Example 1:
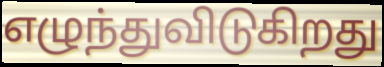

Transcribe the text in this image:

எழுந்துவிடுகிறது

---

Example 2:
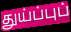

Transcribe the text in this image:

துய்ப்புப்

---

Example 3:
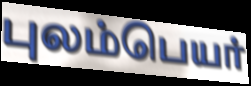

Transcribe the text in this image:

புலம்பெயர்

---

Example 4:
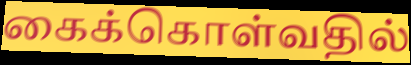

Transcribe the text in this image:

கைக்கொள்வதில்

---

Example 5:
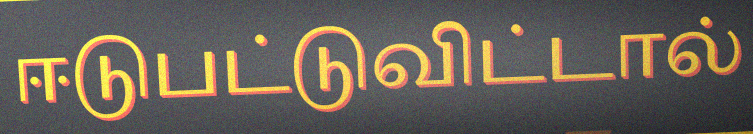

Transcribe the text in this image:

ஈடுபட்டுவிட்டால்